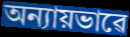
অন্যায়ভাৱে